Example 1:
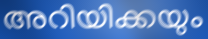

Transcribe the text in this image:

അറിയിക്കയും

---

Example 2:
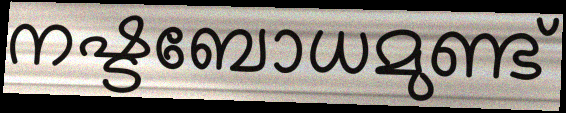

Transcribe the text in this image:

നഷ്ടബോധമുണ്ട്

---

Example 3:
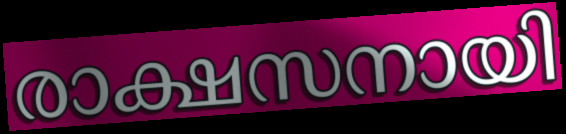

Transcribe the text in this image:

രാക്ഷസനായി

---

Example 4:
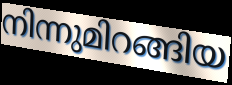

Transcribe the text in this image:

നിന്നുമിറങ്ങിയ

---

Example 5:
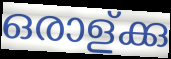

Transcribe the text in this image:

ഒരാള്ക്കു